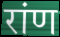
रांण